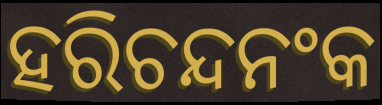
ହରିଚନ୍ଦନଂକ